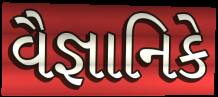
વૈજ્ઞાનિકે